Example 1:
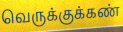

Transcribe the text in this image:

வெருக்குக்கண்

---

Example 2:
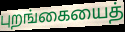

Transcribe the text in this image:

புறங்கையைத்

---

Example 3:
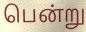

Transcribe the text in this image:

பென்று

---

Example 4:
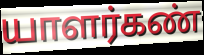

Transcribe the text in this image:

யாளர்கண்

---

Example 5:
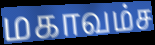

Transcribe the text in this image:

மகாவம்ச